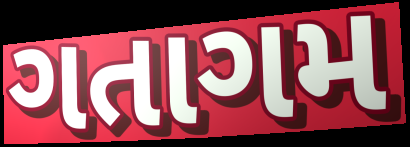
ગતાગમ